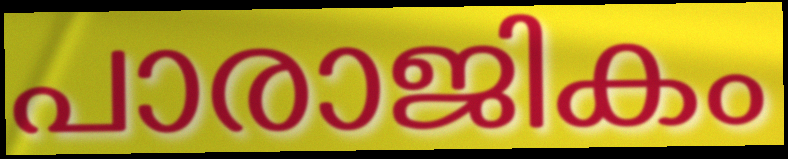
പാരാജികം